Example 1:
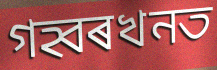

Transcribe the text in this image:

গহ্বৰখনত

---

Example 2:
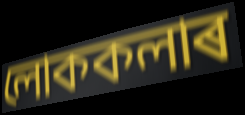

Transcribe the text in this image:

লোককলাৰ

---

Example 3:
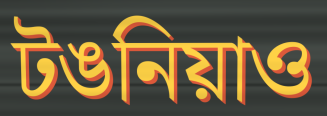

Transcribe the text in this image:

টঙনিয়াও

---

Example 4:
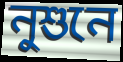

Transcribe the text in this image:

নুশুনে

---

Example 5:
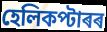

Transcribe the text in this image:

হেলিকপ্টাৰৰ